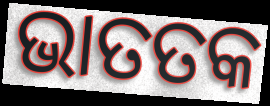
ଭାତତକ